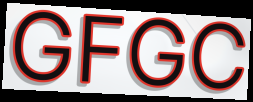
GFGC